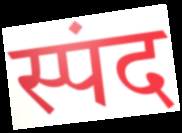
स्पंद